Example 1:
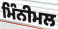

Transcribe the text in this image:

ਮਿੰਨੀਮਲ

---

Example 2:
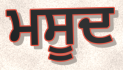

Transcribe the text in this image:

ਮਸੂਦ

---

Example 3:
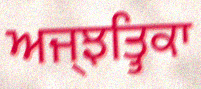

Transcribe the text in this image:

ਅਜ੍ਝਤ੍ਤਿਕਾ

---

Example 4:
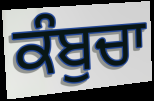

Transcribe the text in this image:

ਕੰਬੁਚਾ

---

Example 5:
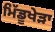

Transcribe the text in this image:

ਮਿੱਡੂਖੇੜਾ